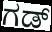
ಗಡ್